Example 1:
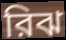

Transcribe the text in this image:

রিঝ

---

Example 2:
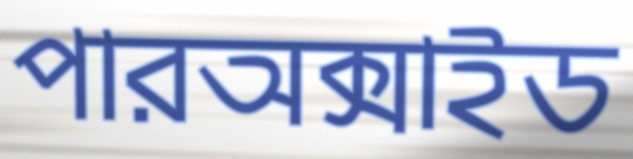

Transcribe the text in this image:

পারঅক্সাইড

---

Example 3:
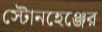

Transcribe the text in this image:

স্টোনহেঞ্জের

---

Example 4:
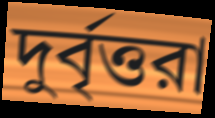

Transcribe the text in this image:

দুর্বৃত্তরা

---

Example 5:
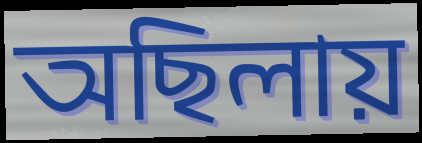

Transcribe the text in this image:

অছিলায়